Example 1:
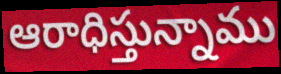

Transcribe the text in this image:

ఆరాధిస్తున్నాము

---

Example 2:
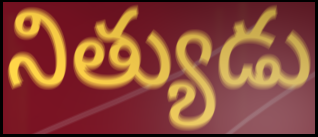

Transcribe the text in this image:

నిత్యుడు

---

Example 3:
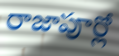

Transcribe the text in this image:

రాజాపూర్లో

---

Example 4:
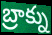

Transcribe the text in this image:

బ్రాక్ను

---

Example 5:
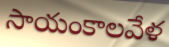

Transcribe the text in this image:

సాయంకాలవేళ